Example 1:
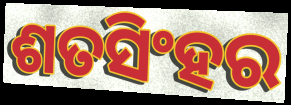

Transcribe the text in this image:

ଶତସିଂହର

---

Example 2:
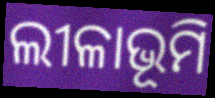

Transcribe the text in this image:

ଲୀଳାଭୂମି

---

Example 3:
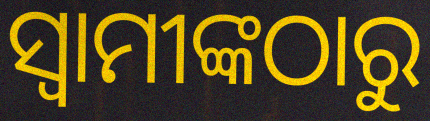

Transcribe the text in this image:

ସ୍ବାମୀଙ୍କଠାରୁ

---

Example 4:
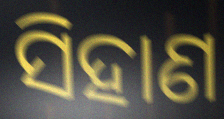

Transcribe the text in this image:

ସିହାଣ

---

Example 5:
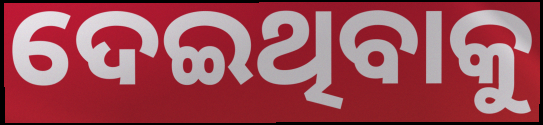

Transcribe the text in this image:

ଦେଇଥିବାକୁ